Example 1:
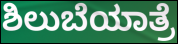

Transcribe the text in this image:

ಶಿಲುಬೆಯಾತ್ರೆ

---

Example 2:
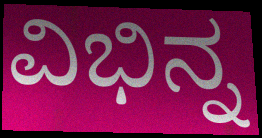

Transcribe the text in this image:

ವಿಭಿನ್ನ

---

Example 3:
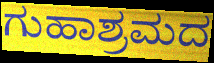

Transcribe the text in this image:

ಗುಹಾಶ್ರಮದ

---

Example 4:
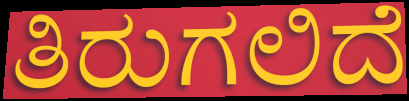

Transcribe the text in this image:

ತಿರುಗಲಿದೆ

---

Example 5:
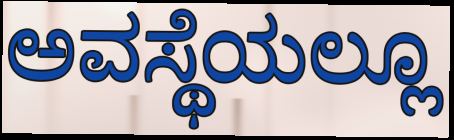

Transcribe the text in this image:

ಅವಸ್ಥೆಯಲ್ಲೂ